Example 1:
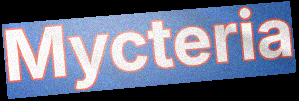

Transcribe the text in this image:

Mycteria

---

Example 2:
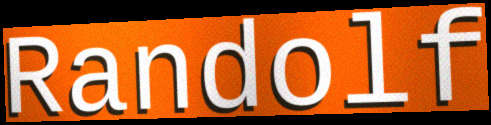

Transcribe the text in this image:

Randolf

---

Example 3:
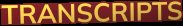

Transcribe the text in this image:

TRANSCRIPTS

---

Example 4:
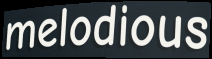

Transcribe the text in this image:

melodious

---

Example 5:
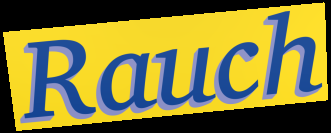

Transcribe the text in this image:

Rauch